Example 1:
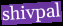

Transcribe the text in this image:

shivpal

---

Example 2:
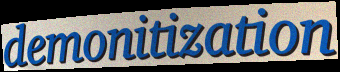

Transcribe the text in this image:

demonitization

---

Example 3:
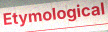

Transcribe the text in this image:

Etymological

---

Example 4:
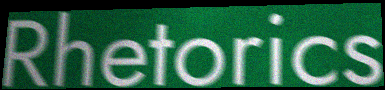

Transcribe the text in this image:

Rhetorics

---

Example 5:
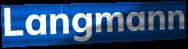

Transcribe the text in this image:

Langmann